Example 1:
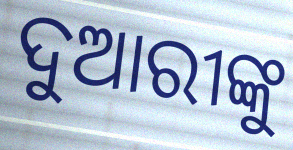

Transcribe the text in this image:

ଦୁଆରୀଙ୍କୁ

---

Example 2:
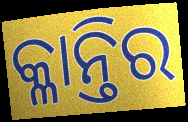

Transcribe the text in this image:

କ୍ଳାନ୍ତିର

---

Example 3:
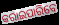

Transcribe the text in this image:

କରାଇପାରିବେ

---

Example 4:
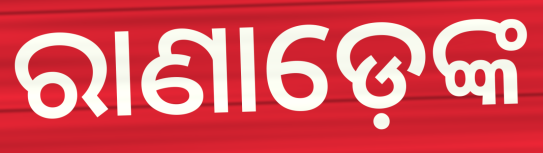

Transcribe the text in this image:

ରାଣାଡ଼େଙ୍କ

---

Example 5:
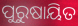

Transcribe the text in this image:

ପୁରୁଷାୟିତ